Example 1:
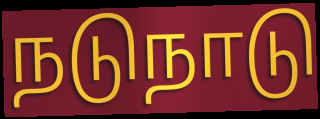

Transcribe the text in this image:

நடுநாடு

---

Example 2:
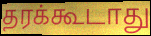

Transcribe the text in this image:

தரக்கூடாது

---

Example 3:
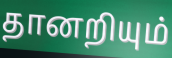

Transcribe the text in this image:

தானறியும்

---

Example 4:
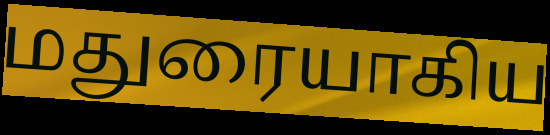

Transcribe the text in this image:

மதுரையாகிய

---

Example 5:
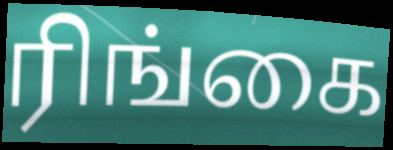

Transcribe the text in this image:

ரிங்கை